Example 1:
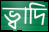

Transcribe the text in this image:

ভ্বাদি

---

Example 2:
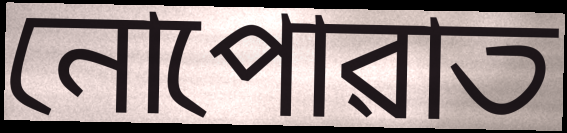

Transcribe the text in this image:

নোপোৱাত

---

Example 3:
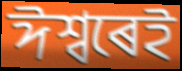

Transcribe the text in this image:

ঈশ্বৰেই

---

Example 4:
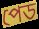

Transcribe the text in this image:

পেড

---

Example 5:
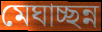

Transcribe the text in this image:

মেঘাচ্ছন্ন